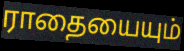
ராதையையும்